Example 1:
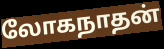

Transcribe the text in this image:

லோகநாதன்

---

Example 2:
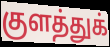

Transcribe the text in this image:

குளத்துக்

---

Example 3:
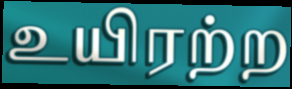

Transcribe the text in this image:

உயிரற்ற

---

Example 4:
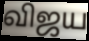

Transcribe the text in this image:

விஜய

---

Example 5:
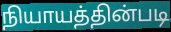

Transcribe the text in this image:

நியாயத்தின்படி